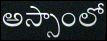
అస్సాంలో